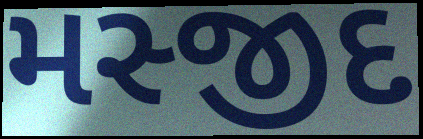
મસ્જીદ